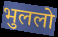
भुललो